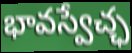
భావస్వేచ్ఛ